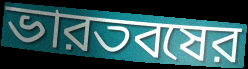
ভারতবষের